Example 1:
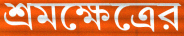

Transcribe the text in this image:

শ্রমক্ষেত্রের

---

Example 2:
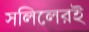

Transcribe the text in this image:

সলিলেরই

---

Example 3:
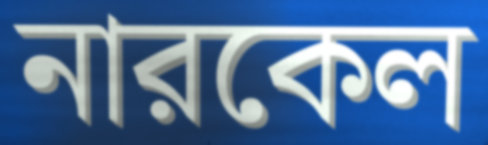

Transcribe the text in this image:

নারকেল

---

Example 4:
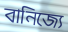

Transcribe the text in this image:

বানিজ্যে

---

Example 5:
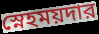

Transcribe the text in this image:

স্নেহময়দার